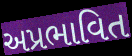
અપ્રભાવિત